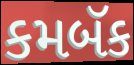
કમબૅક